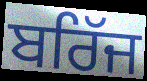
ਬਰਿੱਜ